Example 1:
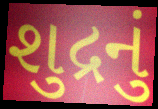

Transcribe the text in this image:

શુદ્રનું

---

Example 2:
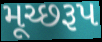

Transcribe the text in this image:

મૂચ્છરૂપ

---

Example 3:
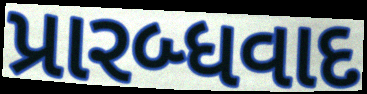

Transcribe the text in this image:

પ્રારબ્ધવાદ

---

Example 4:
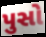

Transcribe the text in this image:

પુસો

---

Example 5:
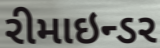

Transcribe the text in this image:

રીમાઇન્ડર